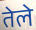
तेले